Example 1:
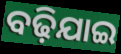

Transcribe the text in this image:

ବଢ଼ିଯାଇ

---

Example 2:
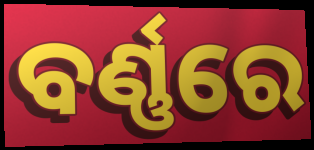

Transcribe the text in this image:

ବର୍ଣ୍ଣରେ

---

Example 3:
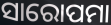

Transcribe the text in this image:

ସାରୋପମା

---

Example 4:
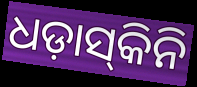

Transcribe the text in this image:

ଧଡ଼ାସ୍‌କିନି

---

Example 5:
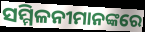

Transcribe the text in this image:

ସମ୍ମିଳନୀମାନଙ୍କରେ